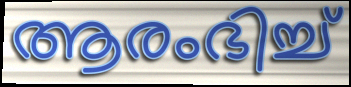
ആരംഭിച്ച്